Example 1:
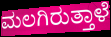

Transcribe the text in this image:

ಮಲಗಿರುತ್ತಾಳೆ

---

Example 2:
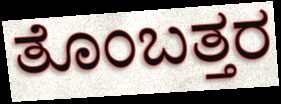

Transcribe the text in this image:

ತೊಂಬತ್ತರ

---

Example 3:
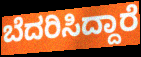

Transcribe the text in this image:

ಬೆದರಿಸಿದ್ದಾರೆ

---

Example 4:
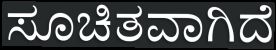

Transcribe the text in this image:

ಸೂಚಿತವಾಗಿದೆ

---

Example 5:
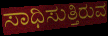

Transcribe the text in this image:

ಸಾಧಿಸುತ್ತಿರುವ